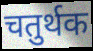
चतुर्थक